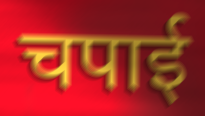
चपाई